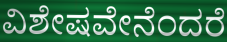
ವಿಶೇಷವೇನೆಂದರೆ